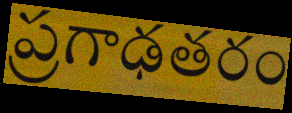
ప్రగాఢతరం